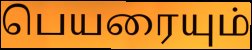
பெயரையும்